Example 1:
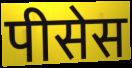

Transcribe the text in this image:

पीसेस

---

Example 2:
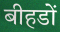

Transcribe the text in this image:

बीहडों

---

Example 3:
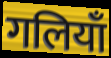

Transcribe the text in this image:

गलियाँ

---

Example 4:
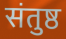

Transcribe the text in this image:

संतुष्ठ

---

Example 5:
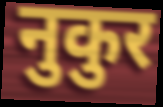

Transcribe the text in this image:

नुकुर